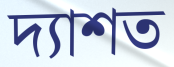
দ্যাশত